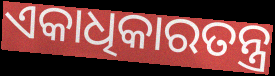
ଏକାଧିକାରତନ୍ତ୍ର